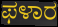
ಫಳಾರ